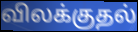
விலக்குதல்